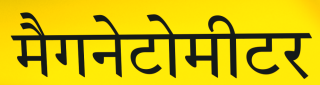
मैगनेटोमीटर